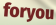
foryou